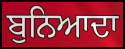
ਬੁਨਿਆਦਾ